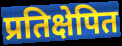
प्रतिक्षेपित